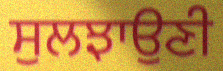
ਸੁਲਝਾਉਣੀ